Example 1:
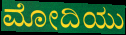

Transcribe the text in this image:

ಮೋದಿಯು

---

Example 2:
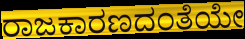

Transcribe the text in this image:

ರಾಜಕಾರಣದಂತೆಯೇ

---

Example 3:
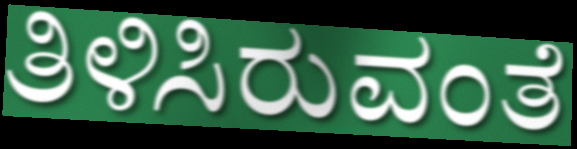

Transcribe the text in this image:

ತಿಳಿಸಿರುವಂತೆ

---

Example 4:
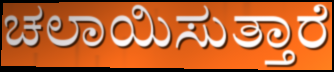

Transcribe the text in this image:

ಚಲಾಯಿಸುತ್ತಾರೆ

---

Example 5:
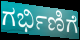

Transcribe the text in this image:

ಗರ್ಭಿಣಿಗೆ